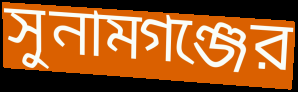
সুনামগঞ্জের